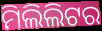
ମିଲିଲିଟର